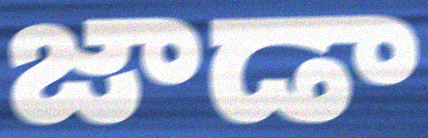
జాడా